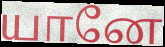
யானே